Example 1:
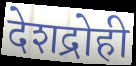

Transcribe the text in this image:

देशद्रोही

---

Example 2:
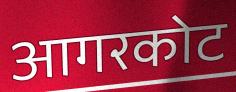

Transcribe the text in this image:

आगरकोट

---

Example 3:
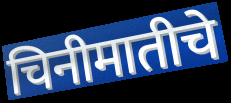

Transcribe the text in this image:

चिनीमातीचे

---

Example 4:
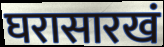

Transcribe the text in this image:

घरासारखं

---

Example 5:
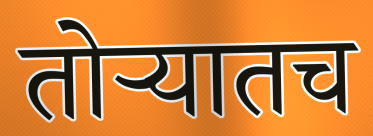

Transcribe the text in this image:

तोऱ्यातच